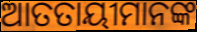
ଆତତାୟୀମାନଙ୍କ